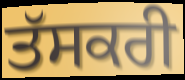
ਤੱਸਕਰੀ